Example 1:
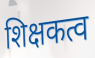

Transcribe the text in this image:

शिक्षकत्व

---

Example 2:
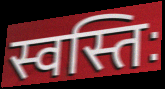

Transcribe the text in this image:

स्वस्तिः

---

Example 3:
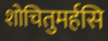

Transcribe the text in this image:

शोचितुमर्हसि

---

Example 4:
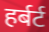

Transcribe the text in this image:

हर्बर्ट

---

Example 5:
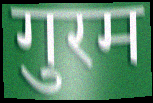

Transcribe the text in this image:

गुरम